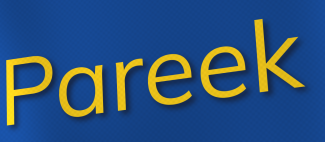
Pareek